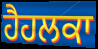
ਹੈਹਲਕਾ